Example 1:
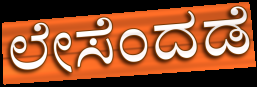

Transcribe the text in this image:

ಲೇಸೆಂದಡೆ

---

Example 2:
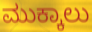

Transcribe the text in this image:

ಮುಕ್ಕಾಲು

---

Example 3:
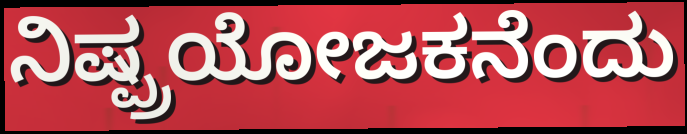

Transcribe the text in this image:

ನಿಷ್ಪ್ರಯೋಜಕನೆಂದು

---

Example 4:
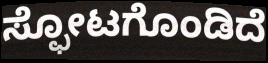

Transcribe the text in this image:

ಸ್ಫೋಟಗೊಂಡಿದೆ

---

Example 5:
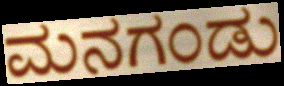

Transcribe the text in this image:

ಮನಗಂಡು